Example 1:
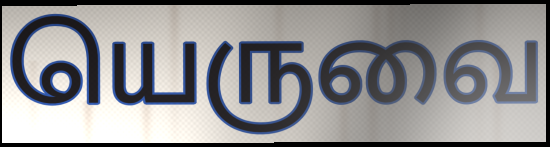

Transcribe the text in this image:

யெருவை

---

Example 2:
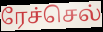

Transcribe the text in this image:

ரேச்செல்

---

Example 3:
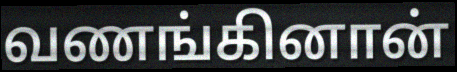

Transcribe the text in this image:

வணங்கினான்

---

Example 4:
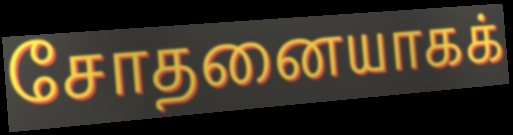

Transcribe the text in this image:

சோதனையாகக்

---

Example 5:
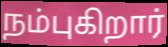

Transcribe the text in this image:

நம்புகிறார்